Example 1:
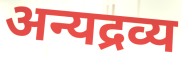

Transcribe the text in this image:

अन्यद्रव्य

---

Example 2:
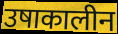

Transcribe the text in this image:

उषाकालीन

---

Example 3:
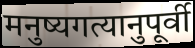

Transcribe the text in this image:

मनुष्यगत्यानुपूर्वी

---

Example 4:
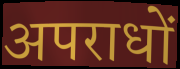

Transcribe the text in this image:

अपराधों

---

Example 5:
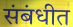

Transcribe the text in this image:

संबंधीत